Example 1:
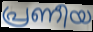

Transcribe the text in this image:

പ്രണീയ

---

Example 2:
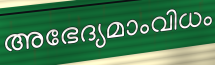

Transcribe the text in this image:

അഭേദ്യമാംവിധം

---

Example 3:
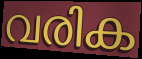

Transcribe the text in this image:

വരിക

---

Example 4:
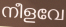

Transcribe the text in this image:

നീളവേ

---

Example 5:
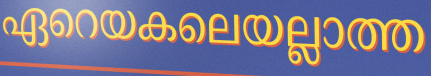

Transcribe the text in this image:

ഏറെയകലെയല്ലാത്ത